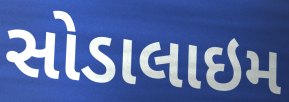
સોડાલાઇમ